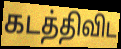
கடத்திவிட